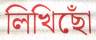
লিখিছোঁ